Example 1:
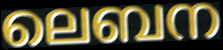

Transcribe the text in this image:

ലെബന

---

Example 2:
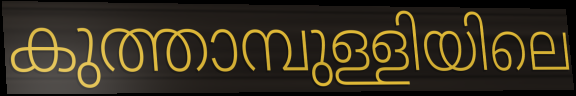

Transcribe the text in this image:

കുത്താമ്പുള്ളിയിലെ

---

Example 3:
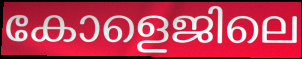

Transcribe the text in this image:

കോളെജിലെ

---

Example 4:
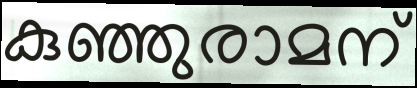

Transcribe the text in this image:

കുഞ്ഞുരാമന്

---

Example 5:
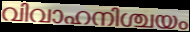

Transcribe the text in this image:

വിവാഹനിശ്ചയം